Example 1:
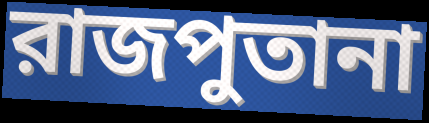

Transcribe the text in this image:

রাজপুতানা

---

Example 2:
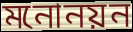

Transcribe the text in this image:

মনোনয়ন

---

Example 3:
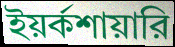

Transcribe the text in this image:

ইয়র্কশায়ারি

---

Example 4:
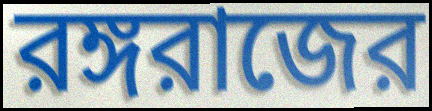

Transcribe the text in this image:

রঙ্গরাজের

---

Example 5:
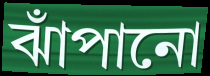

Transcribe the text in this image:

ঝাঁপানো